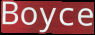
Boyce